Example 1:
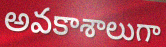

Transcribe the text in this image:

అవకాశాలుగా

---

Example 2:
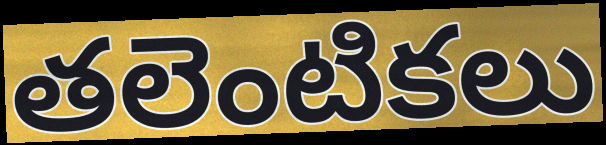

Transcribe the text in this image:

తలెంటికలు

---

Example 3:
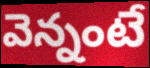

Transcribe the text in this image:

వెన్నంటే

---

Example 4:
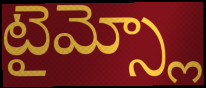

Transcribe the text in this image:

టైమ్స్లో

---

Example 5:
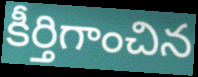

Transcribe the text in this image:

కీర్తిగాంచిన